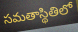
సమతాస్థితిలో